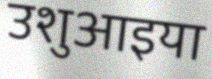
उशुआइया